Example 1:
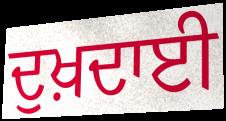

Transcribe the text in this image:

ਦੁਖ਼ਦਾਈ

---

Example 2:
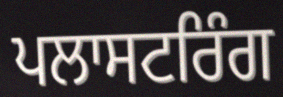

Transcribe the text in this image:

ਪਲਾਸਟਰਿੰਗ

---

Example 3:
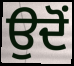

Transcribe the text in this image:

ਉਦੋੰ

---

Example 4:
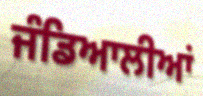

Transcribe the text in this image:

ਜੰਡਿਆਲੀਆਂ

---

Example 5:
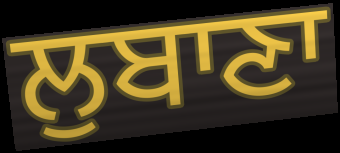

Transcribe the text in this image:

ਲੁਬਾਣਾ